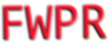
FWPR